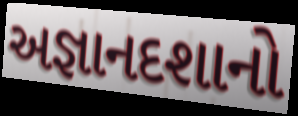
અજ્ઞાનદશાનો